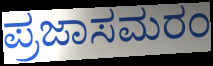
ಪ್ರಜಾಸಮರಂ